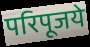
परिपूजये